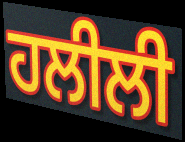
ਹਲੀਲੀ